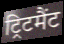
ट्रिटमैंट